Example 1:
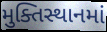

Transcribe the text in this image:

મુક્તિસ્થાનમાં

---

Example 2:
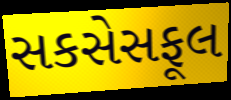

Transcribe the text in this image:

સકસેસફૂલ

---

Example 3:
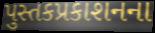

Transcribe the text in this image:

પુસ્તકપ્રકાશનના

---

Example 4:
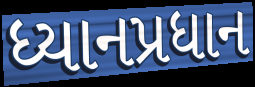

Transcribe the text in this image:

ધ્યાનપ્રધાન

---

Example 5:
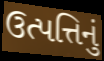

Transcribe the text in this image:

ઉત્પત્તિનું